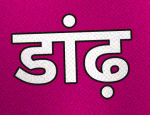
डांढ़